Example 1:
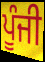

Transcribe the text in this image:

ਪੂੰਜੀ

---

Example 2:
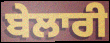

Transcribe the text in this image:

ਬੇਲਾਰੀ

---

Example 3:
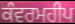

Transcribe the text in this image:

ਕੰਵਰਮਹੀਪ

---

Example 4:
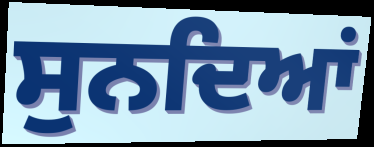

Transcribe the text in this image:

ਸੁਨਦਿਆਂ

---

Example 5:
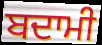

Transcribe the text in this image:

ਬਦਾਮੀ